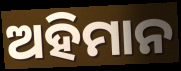
ଅହିମାନ